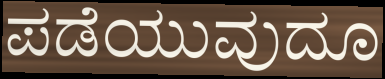
ಪಡೆಯುವುದೂ